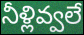
నీళ్లివ్వలే